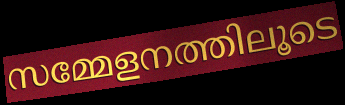
സമ്മേളനത്തിലൂടെ